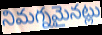
నిమగ్నమైనట్లు